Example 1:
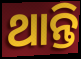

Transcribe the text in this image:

ଥାନ୍ତି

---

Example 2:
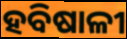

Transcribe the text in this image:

ହବିଷାଳୀ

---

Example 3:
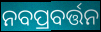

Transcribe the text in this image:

ନବପ୍ରବର୍ତ୍ତନ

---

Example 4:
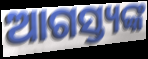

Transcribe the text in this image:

ଆଗସ୍ତ୍ୟଙ୍କ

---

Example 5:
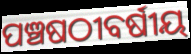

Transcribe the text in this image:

ପଞ୍ଚଷଠୀବର୍ଷୀୟ